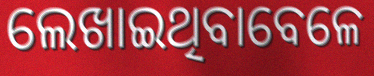
ଲେଖାଇଥିବାବେଳେ